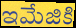
ఇమేజికి